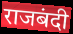
राजबंदी